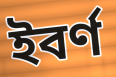
ইবৰ্ণ